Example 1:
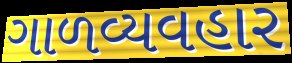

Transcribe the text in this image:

ગાળવ્યવહાર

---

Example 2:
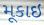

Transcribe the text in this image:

મૂકાઇ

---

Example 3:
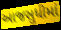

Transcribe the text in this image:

આજસુધીમાં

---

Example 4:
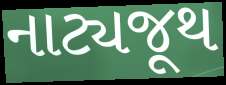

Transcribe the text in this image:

નાટ્યજૂથ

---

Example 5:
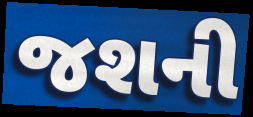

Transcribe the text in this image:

જશની